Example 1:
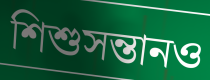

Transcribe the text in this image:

শিশুসন্তানও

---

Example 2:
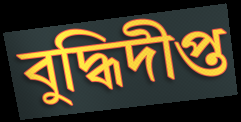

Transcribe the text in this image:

বুদ্ধিদীপ্ত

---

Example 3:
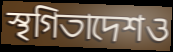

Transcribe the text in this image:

স্থগিতাদেশও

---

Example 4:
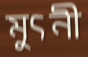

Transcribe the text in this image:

মুৎনী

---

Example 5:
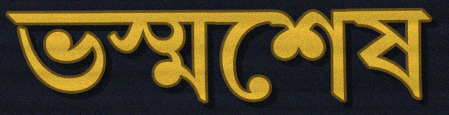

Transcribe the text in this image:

ভস্মশেষ